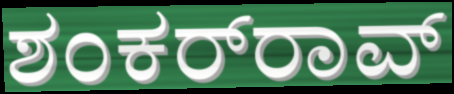
ಶಂಕರ್‌ರಾವ್